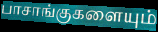
பாசாங்குகளையும்